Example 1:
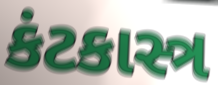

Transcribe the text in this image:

કંટકાસ્ત્ર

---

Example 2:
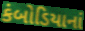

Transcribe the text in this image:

કંબોડિયાનાં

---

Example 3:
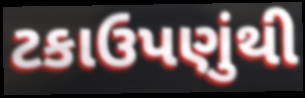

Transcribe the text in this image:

ટકાઉપણુંથી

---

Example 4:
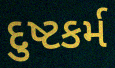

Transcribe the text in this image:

દુષ્ટકર્મ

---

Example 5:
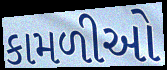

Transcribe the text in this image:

કામળીઓ